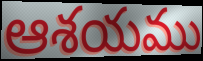
ఆశయము